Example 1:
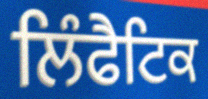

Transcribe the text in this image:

ਲਿੰਫੈਟਿਕ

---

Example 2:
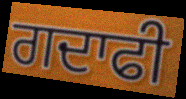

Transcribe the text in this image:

ਗਦਾਫੀ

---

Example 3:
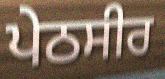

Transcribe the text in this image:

ਪੇਠਸੀਰ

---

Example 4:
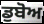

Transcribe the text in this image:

ਡੁਬੋਅ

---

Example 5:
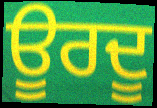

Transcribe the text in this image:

ਊਰਦੂ